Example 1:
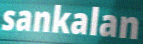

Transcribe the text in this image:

sankalan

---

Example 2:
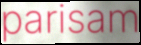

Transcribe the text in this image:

parisam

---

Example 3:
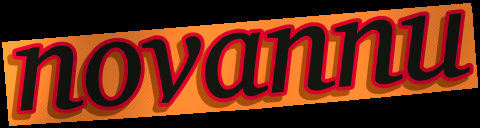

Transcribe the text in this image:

novannu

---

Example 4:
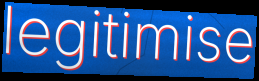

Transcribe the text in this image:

legitimise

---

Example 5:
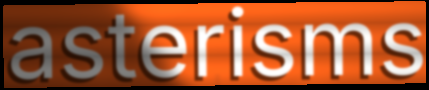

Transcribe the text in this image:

asterisms